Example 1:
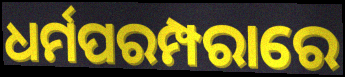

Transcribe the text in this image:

ଧର୍ମପରମ୍ପରାରେ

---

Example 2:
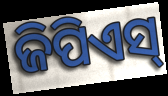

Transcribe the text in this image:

ଜିପିଏସ୍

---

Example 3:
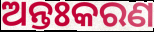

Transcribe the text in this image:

ଅନ୍ତଃକରଣ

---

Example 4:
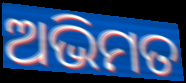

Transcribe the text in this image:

ଅଭିମତ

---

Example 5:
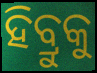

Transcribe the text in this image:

ହିବ୍ରୁକୁ